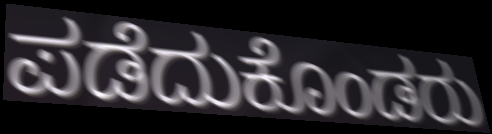
ಪಡೆದುಕೊಂಡರು